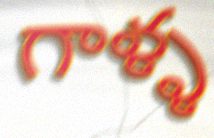
గాళ్ళ